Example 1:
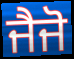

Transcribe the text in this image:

ਜੈਜੋ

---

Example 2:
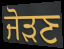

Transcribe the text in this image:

ਜੋੜਣ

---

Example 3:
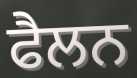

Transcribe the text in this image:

ਫੈਲਨ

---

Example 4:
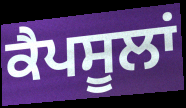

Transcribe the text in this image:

ਕੈਪਸੂਲਾਂ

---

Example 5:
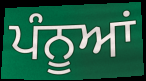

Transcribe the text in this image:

ਪੰਨੂਆਂ